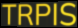
TRPIS